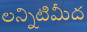
లన్నిటిమీద